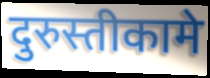
दुरुस्तीकामे